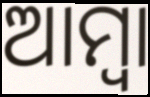
ଆମ୍ବା